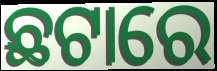
ଛଟାରେ